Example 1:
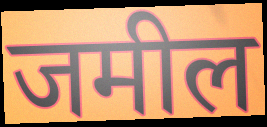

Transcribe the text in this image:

जमील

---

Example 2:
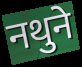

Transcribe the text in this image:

नथुने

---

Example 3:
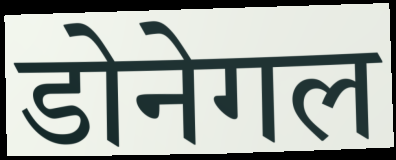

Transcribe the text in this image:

डोनेगल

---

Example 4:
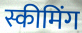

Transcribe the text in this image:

स्कीमिंग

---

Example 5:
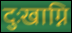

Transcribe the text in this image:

दुःखाग्नि